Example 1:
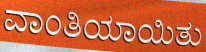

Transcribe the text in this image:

ವಾಂತಿಯಾಯಿತು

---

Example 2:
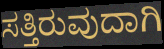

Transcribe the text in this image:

ಸತ್ತಿರುವುದಾಗಿ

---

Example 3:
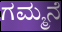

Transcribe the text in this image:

ಗಮ್ಮನೆ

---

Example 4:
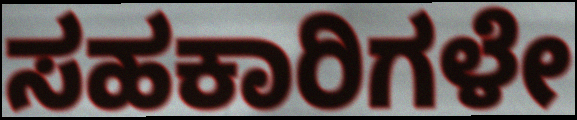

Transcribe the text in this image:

ಸಹಕಾರಿಗಳೇ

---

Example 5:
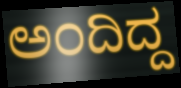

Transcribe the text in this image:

ಅಂದಿದ್ದ